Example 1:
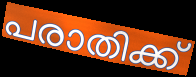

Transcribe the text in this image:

പരാതിക്ക്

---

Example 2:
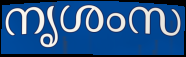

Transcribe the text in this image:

നൃശംസ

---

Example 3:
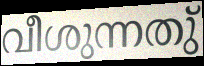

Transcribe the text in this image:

വീശുന്നതു്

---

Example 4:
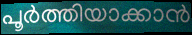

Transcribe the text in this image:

പൂർത്തിയാക്കാൻ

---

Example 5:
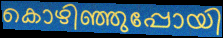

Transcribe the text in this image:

കൊഴിഞ്ഞുപ്പോയി